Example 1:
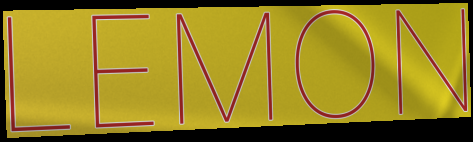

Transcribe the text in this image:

LEMON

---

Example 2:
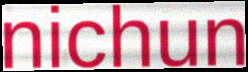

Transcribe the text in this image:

nichun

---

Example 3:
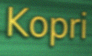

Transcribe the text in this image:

Kopri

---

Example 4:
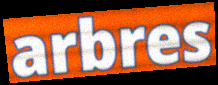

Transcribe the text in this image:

arbres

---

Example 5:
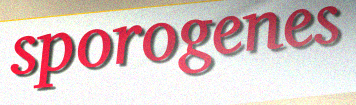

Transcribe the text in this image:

sporogenes